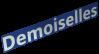
Demoiselles